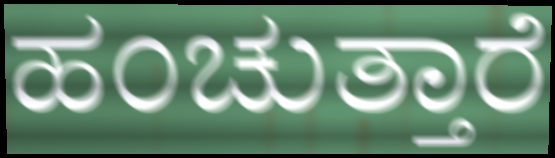
ಹಂಚುತ್ತಾರೆ